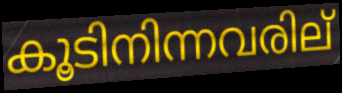
കൂടിനിന്നവരില്